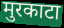
मुरकाटा